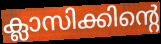
ക്ലാസിക്കിന്റെ